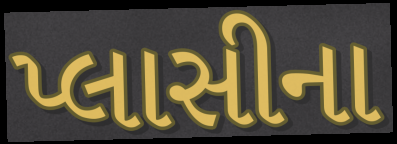
પ્લાસીના